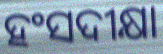
ହଂସଦୀକ୍ଷା